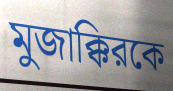
মুজাক্কিরকে